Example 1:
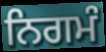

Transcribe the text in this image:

ਨਿਗਮੰ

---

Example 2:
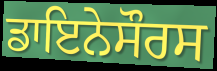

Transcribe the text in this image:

ਡਾਇਨੇਸੌਰਸ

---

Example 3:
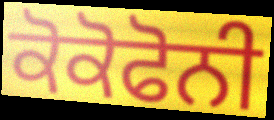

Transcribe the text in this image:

ਕੋਕੋਫੋਨੀ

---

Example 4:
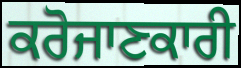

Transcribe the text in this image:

ਕਰੋਜਾਣਕਾਰੀ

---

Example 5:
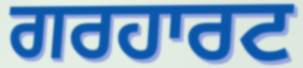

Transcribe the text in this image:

ਗਰਹਾਰਟ